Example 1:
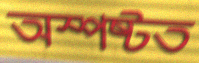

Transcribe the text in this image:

অস্পষ্টত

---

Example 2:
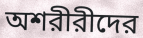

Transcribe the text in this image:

অশরীরীদের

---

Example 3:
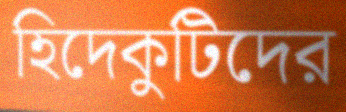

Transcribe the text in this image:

হিদেকুটিদের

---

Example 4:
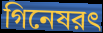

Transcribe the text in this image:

গিনেষরৎ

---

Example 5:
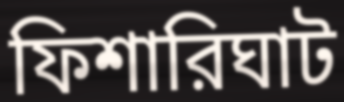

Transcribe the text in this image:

ফিশারিঘাট